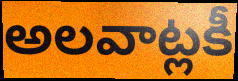
అలవాట్లకీ